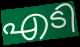
എടി